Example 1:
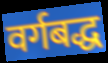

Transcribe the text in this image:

वर्गबद्ध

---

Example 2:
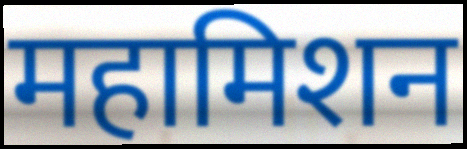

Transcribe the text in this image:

महामिशन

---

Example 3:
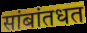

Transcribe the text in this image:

सांबांतधत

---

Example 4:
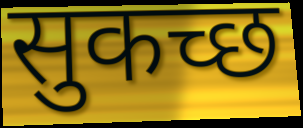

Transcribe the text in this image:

सुकच्छ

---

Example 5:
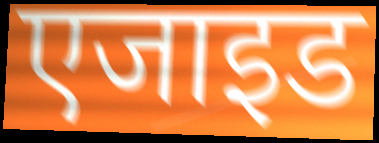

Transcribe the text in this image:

एजाइड